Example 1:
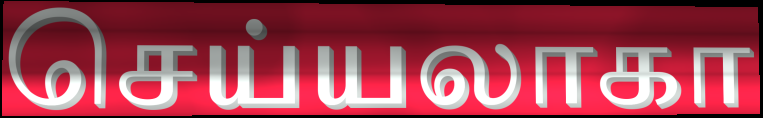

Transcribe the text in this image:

செய்யலாகா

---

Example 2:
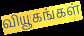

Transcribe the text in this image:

வியூகங்கள்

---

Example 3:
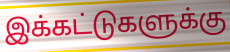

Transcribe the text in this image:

இக்கட்டுகளுக்கு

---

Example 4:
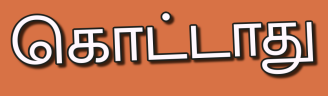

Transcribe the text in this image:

கொட்டாது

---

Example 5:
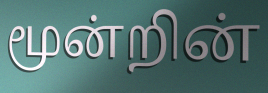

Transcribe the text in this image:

மூன்றின்